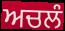
ਅਚਲੰ